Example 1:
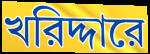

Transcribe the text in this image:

খরিদ্দারে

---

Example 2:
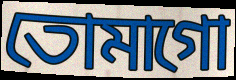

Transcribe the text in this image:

তোমাগো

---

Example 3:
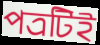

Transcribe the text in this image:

পত্রটিই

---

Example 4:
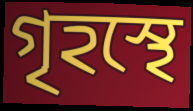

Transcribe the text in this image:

গৃহস্থে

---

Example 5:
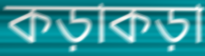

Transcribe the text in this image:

কড়াকড়া